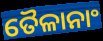
ତୈଳାନାଂ